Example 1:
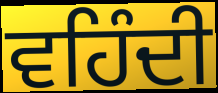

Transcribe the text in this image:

ਵਹਿੰਦੀ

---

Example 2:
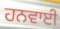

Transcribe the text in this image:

ਹਨਵਾਈ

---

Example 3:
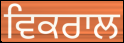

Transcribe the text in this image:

ਵਿਕਰਾਲ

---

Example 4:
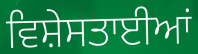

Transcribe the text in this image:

ਵਿਸ਼ੇਸਤਾਈਆਂ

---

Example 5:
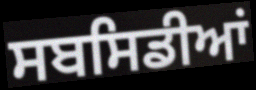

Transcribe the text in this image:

ਸਬਸਿਡੀਆਂ